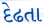
દેઢતા